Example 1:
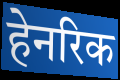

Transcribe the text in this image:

हेनरिक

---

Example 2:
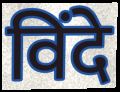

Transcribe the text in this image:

विंदे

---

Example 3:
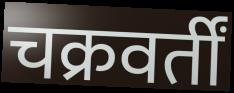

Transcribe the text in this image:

चक्रवर्तीं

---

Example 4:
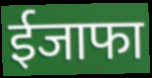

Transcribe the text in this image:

ईजाफा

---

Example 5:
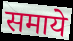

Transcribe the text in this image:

समाये